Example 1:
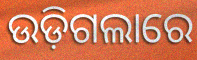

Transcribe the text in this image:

ଉଡ଼ିଗଲାରେ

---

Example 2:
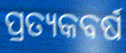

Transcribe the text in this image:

ପ୍ରତ୍ୟକବର୍ଷ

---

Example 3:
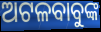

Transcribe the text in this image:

ଅଟଳବାବୁଙ୍କ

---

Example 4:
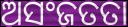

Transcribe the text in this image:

ଅସଂଜତତା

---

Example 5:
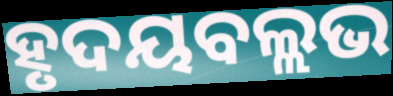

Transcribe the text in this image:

ହୃଦୟବଲ୍ଲଭ